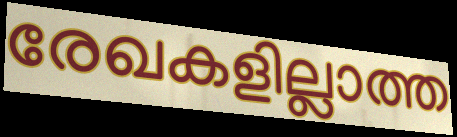
രേഖകളില്ലാത്ത